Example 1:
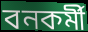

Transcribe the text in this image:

বনকর্মী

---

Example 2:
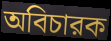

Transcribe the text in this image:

অবিচারক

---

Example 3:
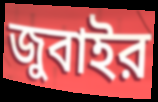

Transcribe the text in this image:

জুবাইর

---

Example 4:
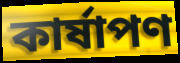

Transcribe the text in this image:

কার্ষাপণ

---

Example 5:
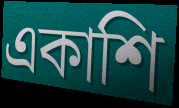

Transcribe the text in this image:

একাশি